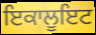
ਇਕਾਲੂਇਟ